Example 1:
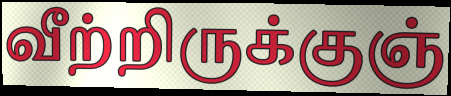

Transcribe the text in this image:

வீற்றிருக்குஞ்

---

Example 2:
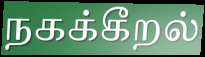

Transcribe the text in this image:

நகக்கீறல்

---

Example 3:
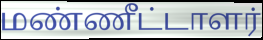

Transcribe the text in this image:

மண்ணீட்டாளர்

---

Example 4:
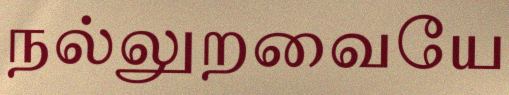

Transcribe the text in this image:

நல்லுறவையே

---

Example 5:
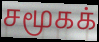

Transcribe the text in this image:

சமூகக்